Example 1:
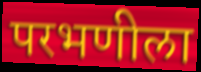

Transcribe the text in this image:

परभणीला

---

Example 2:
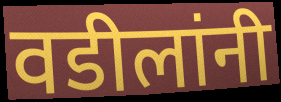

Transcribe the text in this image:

वडीलांनी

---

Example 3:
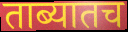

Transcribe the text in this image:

ताब्यातच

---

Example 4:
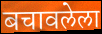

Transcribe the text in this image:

बचावलेला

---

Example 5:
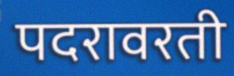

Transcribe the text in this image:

पदरावरती